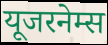
यूजरनेम्स